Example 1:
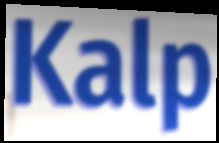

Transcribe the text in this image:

Kalp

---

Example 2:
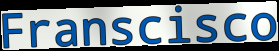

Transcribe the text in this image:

Franscisco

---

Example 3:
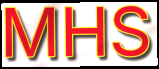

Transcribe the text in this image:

MHS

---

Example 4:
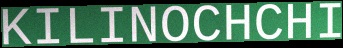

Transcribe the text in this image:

KILINOCHCHI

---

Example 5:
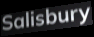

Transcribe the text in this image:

Salisbury